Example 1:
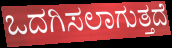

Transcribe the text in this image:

ಒದಗಿಸಲಾಗುತ್ತದೆ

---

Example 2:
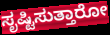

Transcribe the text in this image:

ಸೃಷ್ಟಿಸುತ್ತಾರೋ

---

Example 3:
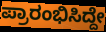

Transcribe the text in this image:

ಪ್ರಾರಂಭಿಸಿದ್ದೇ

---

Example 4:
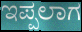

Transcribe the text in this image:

ಇಪ್ಪಲಾಗ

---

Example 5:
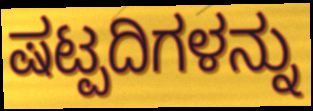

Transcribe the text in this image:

ಷಟ್ಪದಿಗಳನ್ನು